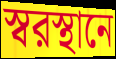
স্বরস্থানে